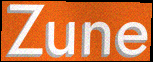
Zune